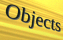
Objects